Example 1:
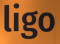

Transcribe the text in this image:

ligo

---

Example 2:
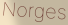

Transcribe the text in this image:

Norges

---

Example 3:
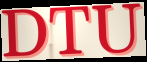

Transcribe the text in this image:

DTU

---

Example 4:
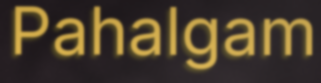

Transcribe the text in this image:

Pahalgam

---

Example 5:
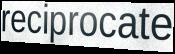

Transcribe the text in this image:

reciprocate